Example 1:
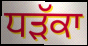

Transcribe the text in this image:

ਧੜੱਕਾ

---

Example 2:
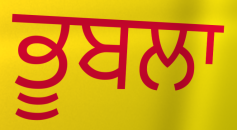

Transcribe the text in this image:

ਭੂਬਲਾ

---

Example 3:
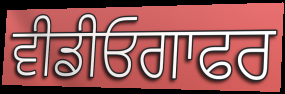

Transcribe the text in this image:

ਵੀਡੀਓਗਾਫਰ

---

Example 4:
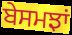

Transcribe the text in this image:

ਬੇਸਮਝਾਂ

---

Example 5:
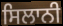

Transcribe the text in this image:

ਸਿਲਾਨੀ